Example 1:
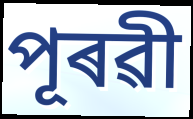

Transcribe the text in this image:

পূৰৱী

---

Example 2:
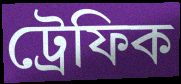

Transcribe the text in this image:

ট্ৰেফিক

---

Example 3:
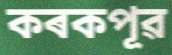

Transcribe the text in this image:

কৰকপূৱ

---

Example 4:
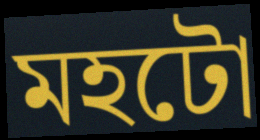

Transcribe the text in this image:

মহটো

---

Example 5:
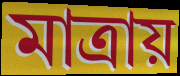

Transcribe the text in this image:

মাত্ৰায়